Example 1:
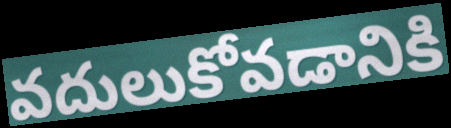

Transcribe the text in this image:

వదులుకోవడానికి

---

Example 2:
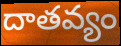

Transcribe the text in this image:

దాతవ్యం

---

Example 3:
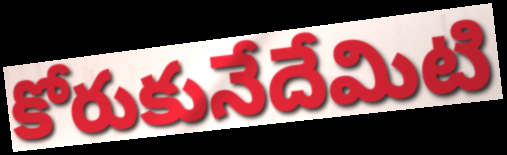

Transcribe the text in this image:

కోరుకునేదేమిటి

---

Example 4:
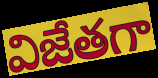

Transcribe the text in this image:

విజేతగా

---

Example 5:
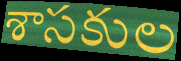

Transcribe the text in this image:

శాసకుల